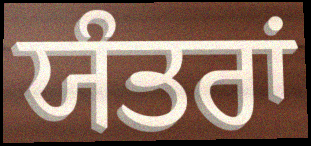
ਯੰਤਰਾਂ